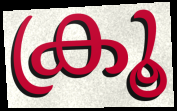
ക്രൂ